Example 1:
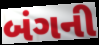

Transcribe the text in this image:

બંગની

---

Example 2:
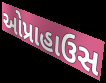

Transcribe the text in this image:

ઓપ્રાહાઉસ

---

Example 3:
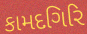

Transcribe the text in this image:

કામદગિરિ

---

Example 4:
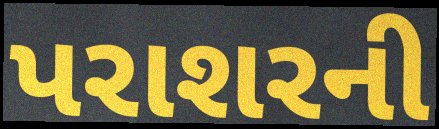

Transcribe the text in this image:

પરાશરની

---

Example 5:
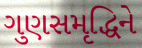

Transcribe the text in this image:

ગુણસમૃદ્ધિને